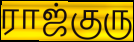
ராஜ்குரு